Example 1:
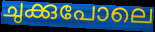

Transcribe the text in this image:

ചുക്കുപോലെ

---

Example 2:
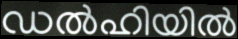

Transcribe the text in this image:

ഡൽഹിയിൽ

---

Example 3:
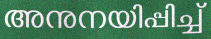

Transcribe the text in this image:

അനുനയിപ്പിച്ച്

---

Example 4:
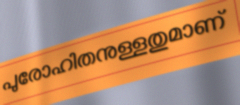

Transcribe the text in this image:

പുരോഹിതനുള്ളതുമാണ്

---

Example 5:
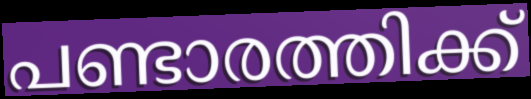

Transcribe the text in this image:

പണ്ടാരത്തിക്ക്